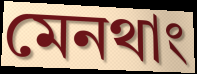
মেনথাং